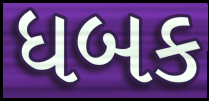
ધબક